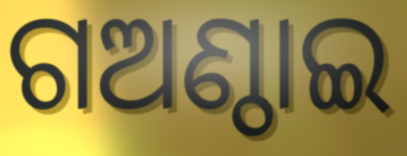
ଗଅଣ୍ଠାଇ